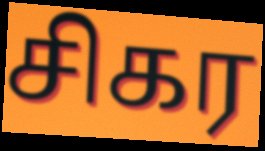
சிகர